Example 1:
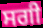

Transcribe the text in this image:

ਸਗੀ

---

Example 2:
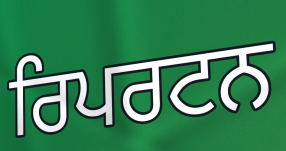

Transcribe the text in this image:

ਰਿਪਰਟਨ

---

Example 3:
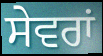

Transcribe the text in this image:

ਸੇਵਰਾਂ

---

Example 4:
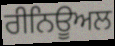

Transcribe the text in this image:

ਰੀਨਿਊਅਲ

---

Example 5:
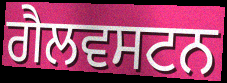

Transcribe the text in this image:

ਗੈਲਵਸਟਨ